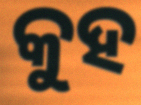
କୁହ